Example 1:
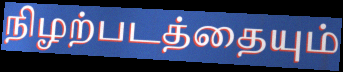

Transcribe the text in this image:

நிழற்படத்தையும்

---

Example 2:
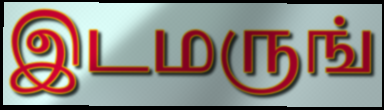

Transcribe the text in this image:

இடமருங்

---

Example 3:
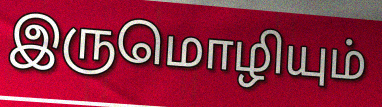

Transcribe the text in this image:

இருமொழியும்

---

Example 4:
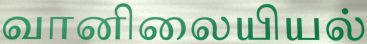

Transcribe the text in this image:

வானிலையியல்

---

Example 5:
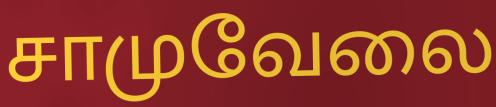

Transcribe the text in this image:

சாமுவேலை